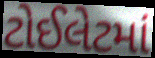
ટોઈલેટમાં